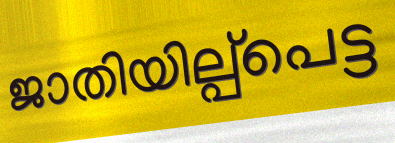
ജാതിയില്പ്പെട്ട